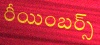
రీయింబర్స్